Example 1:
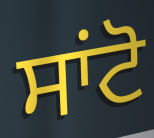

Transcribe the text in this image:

ਸਾਂਟੋ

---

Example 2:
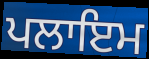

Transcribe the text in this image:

ਪਲਾਇਮ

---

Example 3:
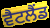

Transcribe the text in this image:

ਵੈਟਲੈਂਡ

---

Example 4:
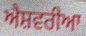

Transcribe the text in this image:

ਐਸ਼ਵਰੀਆ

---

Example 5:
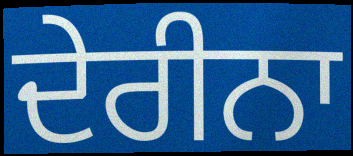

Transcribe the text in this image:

ਦੇਰੀਨਾ